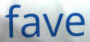
fave